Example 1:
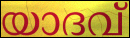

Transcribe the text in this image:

യാദവ്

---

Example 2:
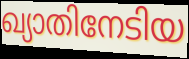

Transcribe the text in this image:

ഖ്യാതിനേടിയ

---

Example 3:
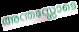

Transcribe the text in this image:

അന്തസ്സോടെ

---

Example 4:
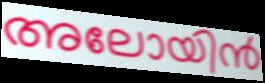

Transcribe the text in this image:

അലോയിൻ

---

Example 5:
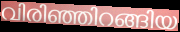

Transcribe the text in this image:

വിരിഞ്ഞിറങ്ങിയ